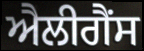
ਐਲੀਗੈਂਸ